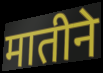
मातीने